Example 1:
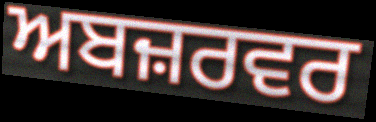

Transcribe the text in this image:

ਅਬਜ਼ਰਵਰ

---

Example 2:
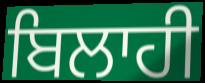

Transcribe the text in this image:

ਬਿਲਾਹੀ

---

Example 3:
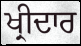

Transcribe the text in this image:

ਖ੍ਰੀਦਾਰ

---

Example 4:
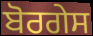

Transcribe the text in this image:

ਬੋਰਗੇਸ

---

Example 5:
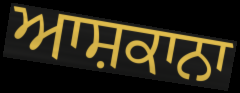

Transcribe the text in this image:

ਆਸ਼ਕਾਨਾ